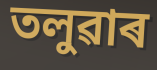
তলুৱাৰ